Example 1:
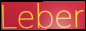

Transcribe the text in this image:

Leber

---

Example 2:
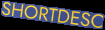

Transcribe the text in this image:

SHORTDESC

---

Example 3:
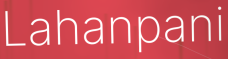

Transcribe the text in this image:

Lahanpani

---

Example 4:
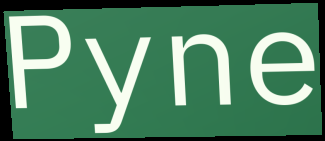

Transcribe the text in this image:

Pyne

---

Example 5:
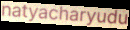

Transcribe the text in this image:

natyacharyudu